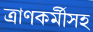
ত্রাণকর্মীসহ